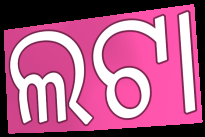
ଲଟା